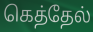
கெத்தேல்